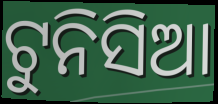
ଟୁନିସିଆ